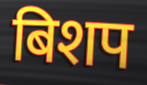
बिशप